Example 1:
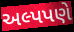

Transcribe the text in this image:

અલ્પપણે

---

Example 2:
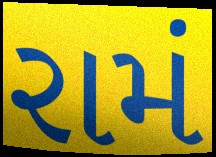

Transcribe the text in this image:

રામં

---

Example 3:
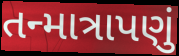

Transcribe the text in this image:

તન્માત્રાપણું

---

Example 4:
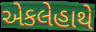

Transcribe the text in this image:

એકલેહાથે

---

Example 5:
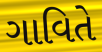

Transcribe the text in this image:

ગાવિતે